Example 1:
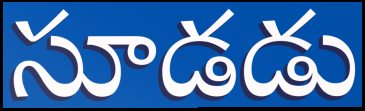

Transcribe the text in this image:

సూడడు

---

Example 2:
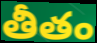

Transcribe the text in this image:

తీతం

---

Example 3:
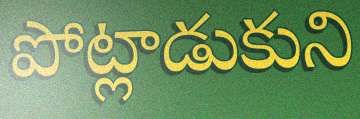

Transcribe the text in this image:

పోట్లాడుకుని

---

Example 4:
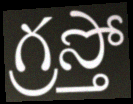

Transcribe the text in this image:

గ్రస్తో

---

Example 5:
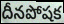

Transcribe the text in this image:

దీనపోషక